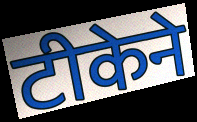
टीकेने